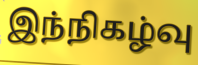
இந்நிகழ்வு